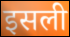
इसली